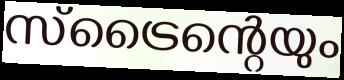
സ്ട്രൈന്റെയും